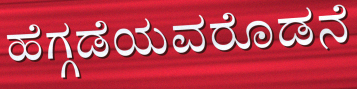
ಹೆಗ್ಗಡೆಯವರೊಡನೆ